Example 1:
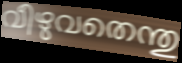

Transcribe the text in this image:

വീഴുവതെന്തു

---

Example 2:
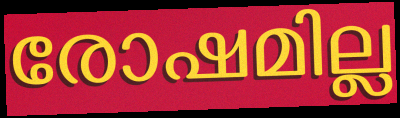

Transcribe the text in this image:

രോഷമില്ല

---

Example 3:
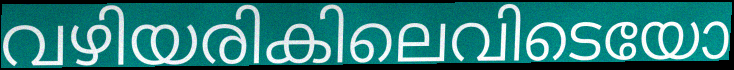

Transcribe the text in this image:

വഴിയരികിലെവിടെയോ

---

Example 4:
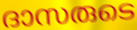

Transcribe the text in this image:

ദാസരുടെ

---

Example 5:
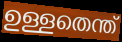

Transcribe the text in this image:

ഉള്ളതെന്ത്